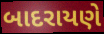
બાદરાયણે